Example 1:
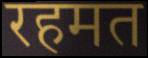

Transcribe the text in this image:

रहमत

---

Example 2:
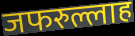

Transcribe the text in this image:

जफरुल्लाह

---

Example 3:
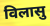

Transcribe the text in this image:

विलासु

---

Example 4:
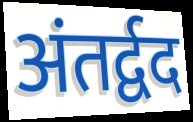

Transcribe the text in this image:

अंतर्द्वद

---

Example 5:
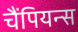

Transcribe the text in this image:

चैंपियन्स